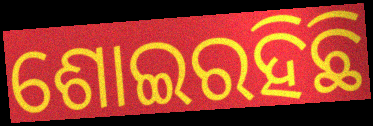
ଶୋଇରହିଛି